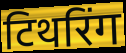
टिथरिंग